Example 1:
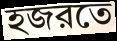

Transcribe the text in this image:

হজরতে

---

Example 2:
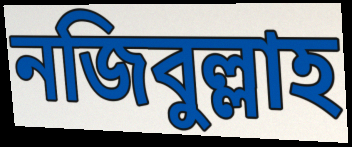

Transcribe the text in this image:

নজিবুল্লাহ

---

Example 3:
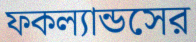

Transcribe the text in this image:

ফকল্যান্ডসের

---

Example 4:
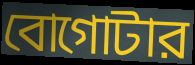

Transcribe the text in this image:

বোগোটার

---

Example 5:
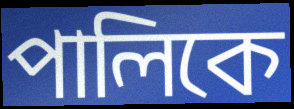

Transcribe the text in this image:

পালিকে